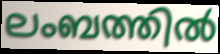
ലംബത്തിൽ